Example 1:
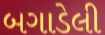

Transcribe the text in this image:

બગાડેલી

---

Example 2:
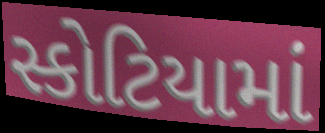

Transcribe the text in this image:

સ્કોટિયામાં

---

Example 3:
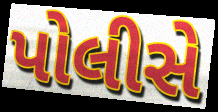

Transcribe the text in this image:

પોલીસે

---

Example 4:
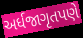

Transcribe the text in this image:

અર્ધજાગૃતપણે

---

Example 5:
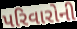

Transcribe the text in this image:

પરિવારોની